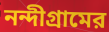
নন্দীগ্রামের